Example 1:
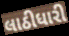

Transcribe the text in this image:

લાઠીધારી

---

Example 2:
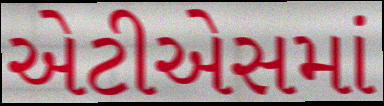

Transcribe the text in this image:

એટીએસમાં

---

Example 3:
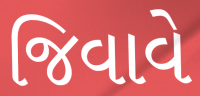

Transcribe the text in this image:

જિવાવે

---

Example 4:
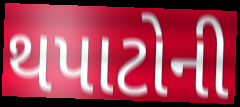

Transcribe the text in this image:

થપાટોની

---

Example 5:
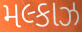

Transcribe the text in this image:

મલ્કાઝ